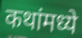
कथांमध्ये